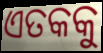
ଏତକକୁ